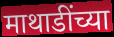
माथाडींच्या